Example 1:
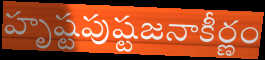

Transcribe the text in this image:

హృష్టపుష్టజనాకీర్ణం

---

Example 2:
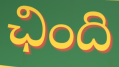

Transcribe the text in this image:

ఛింది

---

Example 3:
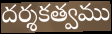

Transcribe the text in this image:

దర్శకత్వము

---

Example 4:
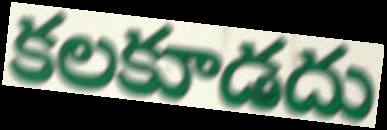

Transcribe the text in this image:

కలకూడదు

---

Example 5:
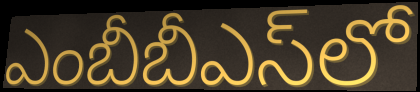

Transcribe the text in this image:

ఎంబీబీఎస్‌లో